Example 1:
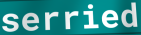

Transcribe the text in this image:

serried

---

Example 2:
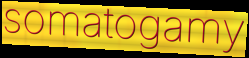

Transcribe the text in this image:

somatogamy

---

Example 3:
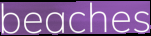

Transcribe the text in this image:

beaches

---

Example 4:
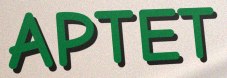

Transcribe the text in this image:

APTET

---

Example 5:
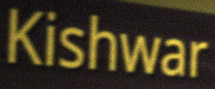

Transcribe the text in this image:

Kishwar